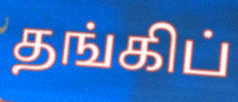
தங்கிப்